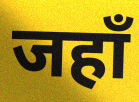
जहाँ